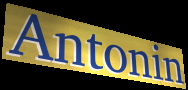
Antonin